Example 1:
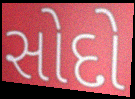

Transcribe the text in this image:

સોદો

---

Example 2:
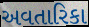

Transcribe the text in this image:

અવતારિકા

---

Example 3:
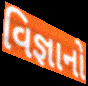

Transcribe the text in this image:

વિજ્ઞાનો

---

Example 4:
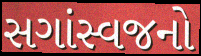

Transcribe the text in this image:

સગાંસ્વજનો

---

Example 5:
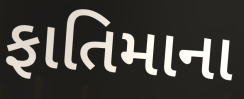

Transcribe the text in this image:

ફાતિમાના